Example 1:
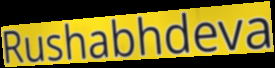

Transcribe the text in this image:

Rushabhdeva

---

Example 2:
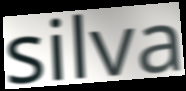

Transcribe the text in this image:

silva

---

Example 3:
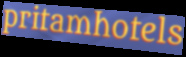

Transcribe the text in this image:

pritamhotels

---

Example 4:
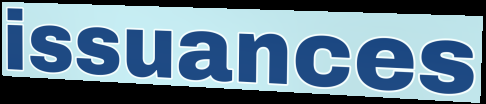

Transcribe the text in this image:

issuances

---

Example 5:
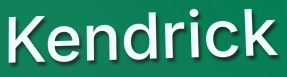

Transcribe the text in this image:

Kendrick